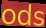
ods